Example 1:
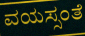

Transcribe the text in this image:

ವಯಸ್ಸಂತೆ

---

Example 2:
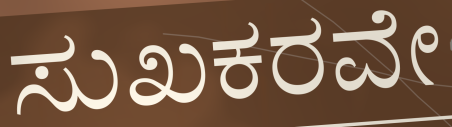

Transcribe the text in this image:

ಸುಖಕರವೇ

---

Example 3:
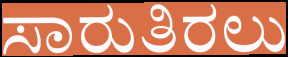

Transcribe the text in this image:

ಸಾರುತಿರಲು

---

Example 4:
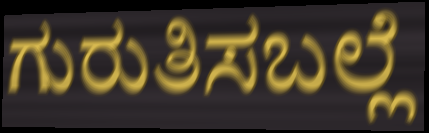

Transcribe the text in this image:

ಗುರುತಿಸಬಲ್ಲೆ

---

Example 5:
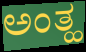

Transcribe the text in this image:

ಅಂತ್ಹ